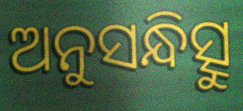
ଅନୁସନ୍ଧିତ୍ସୁ